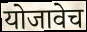
योजावेच